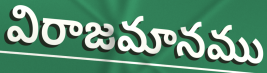
విరాజమానము